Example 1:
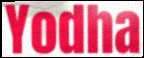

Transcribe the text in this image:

Yodha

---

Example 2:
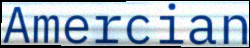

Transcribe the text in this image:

Amercian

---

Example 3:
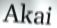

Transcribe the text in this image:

Akai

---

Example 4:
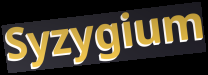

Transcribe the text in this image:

Syzygium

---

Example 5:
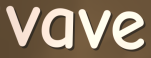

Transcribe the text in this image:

vave